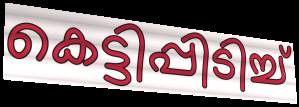
കെട്ടിപ്പിടിച്ച്